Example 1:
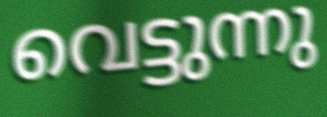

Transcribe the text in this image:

വെട്ടുന്നു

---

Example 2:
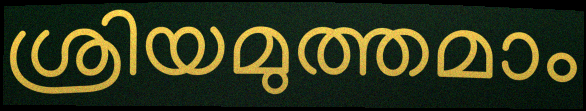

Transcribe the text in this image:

ശ്രിയമുത്തമാം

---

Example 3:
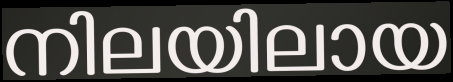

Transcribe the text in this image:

നിലയിലായ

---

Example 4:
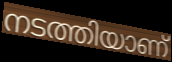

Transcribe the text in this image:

നടത്തിയാണ്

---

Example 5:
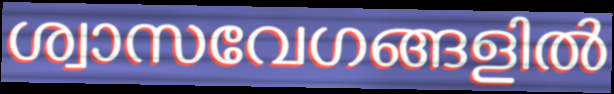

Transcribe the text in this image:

ശ്വാസവേഗങ്ങളിൽ